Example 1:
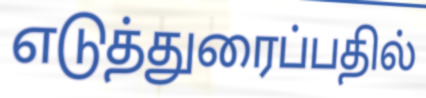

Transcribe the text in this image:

எடுத்துரைப்பதில்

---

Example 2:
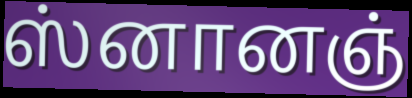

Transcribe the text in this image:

ஸ்னானஞ்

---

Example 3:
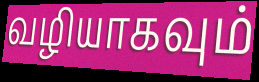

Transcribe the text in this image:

வழியாகவும்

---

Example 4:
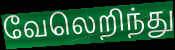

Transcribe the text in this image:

வேலெறிந்து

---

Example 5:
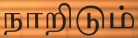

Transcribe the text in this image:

நாறிடும்